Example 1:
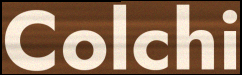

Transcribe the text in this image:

Colchi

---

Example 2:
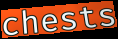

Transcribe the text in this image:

chests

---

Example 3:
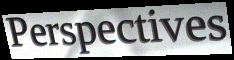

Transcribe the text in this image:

Perspectives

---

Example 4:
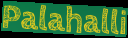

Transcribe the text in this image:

Palahalli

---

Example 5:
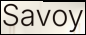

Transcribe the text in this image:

Savoy